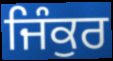
ਜਿੰਕੁਰ